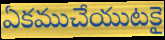
ఏకముచేయుటకై